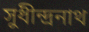
সুধীন্দ্রনাথ